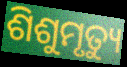
ଶିଶୁମୃତ୍ୟୁ